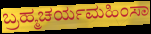
ಬ್ರಹ್ಮಚರ್ಯಮಹಿಂಸಾ